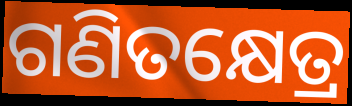
ଗଣିତକ୍ଷେତ୍ର